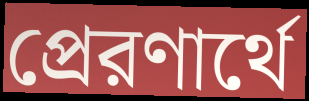
প্রেরণার্থে